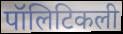
पॉलिटिकली